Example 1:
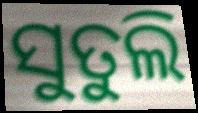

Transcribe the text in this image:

ସୁତୁଲି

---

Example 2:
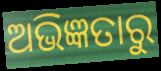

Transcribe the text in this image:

ଅଭିଜ୍ଞତାରୁ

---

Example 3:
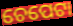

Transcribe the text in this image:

ଚେପେଟା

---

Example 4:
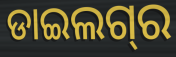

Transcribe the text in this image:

ଡାଇଲଗ୍‌ର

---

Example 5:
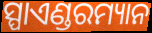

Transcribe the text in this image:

ସ୍ପାଏଣ୍ଡରମ୍ୟାନ